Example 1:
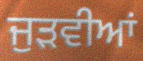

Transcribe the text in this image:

ਜੁੜਵੀਆਂ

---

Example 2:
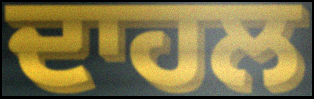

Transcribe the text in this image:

ਦਾਹਲ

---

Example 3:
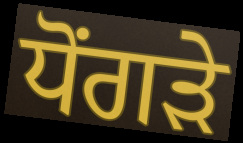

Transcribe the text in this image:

ਧੋਂਗੜੇ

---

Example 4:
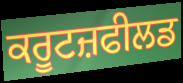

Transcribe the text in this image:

ਕਰੂਟਜ਼ਫੀਲਡ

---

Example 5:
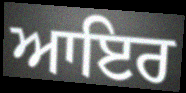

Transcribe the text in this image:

ਆਇਰ